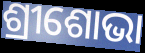
ଶ୍ରୀଶୋଭା